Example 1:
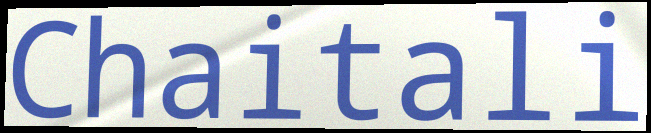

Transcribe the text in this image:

Chaitali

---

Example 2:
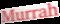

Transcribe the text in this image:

Murrah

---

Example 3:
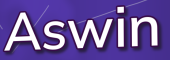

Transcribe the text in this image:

Aswin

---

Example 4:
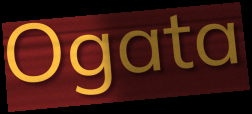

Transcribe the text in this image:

Ogata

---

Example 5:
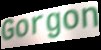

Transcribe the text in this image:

Gorgon